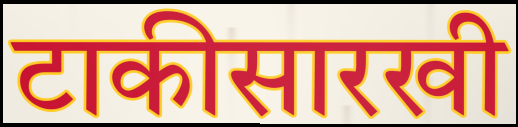
टाकीसारखी